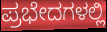
ಪ್ರಭೇದಗಳಲ್ಲಿ